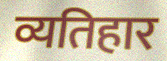
व्यतिहार